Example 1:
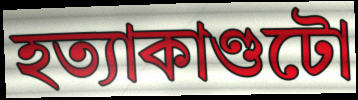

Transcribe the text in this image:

হত্যাকাণ্ডটো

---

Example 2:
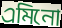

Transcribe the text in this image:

এমিনো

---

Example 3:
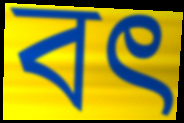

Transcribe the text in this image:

বৎ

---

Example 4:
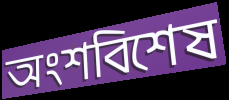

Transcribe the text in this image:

অংশবিশেষ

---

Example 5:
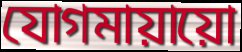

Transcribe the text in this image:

যোগমায়ায়ো